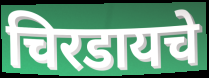
चिरडायचे